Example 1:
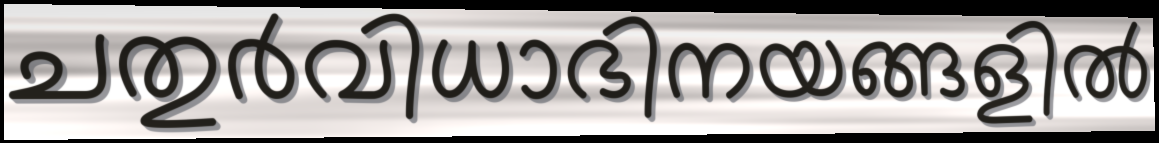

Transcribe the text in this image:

ചതുർവിധാഭിനയങ്ങളിൽ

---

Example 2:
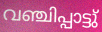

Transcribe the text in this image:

വഞ്ചിപ്പാട്ടു്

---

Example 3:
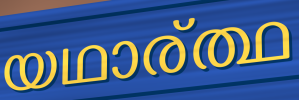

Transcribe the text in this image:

യഥാര്ത്ഥ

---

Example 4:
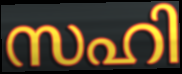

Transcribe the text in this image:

സഹി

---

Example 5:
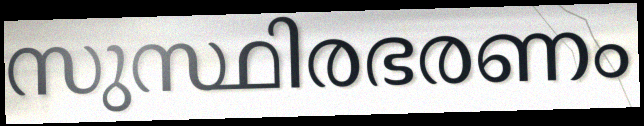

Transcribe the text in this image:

സുസ്ഥിരഭരണം